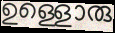
ഉള്ളൊരു